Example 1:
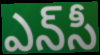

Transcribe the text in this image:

ఎన్‌సీ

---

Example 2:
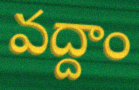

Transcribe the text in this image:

వద్దాం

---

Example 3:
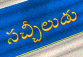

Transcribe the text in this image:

సచ్చీలుడు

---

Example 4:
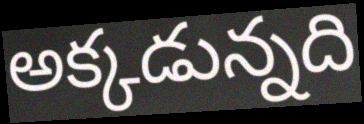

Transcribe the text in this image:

అక్కడున్నది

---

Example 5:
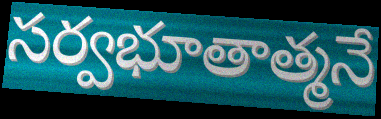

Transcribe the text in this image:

సర్వభూతాత్మనే